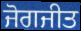
ਜੋਗਜੀਤ